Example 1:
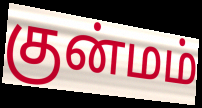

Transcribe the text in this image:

குன்மம்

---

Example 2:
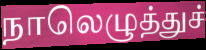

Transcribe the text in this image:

நாலெழுத்துச்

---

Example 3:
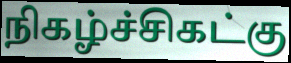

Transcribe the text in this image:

நிகழ்ச்சிகட்கு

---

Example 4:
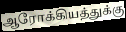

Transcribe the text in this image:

ஆரோக்கியத்துக்கு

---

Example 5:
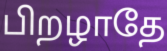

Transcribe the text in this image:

பிறழாதே